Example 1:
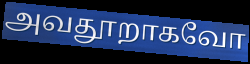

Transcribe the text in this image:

அவதூறாகவோ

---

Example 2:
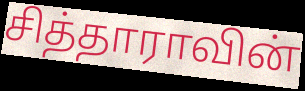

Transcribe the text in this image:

சித்தாராவின்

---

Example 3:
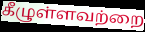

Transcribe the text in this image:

கீழுள்ளவற்றை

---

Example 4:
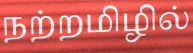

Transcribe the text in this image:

நற்றமிழில்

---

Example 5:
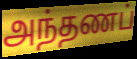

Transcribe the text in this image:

அந்தணப்